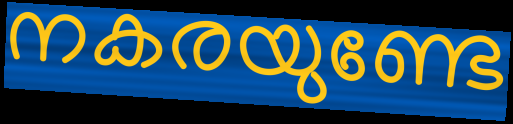
നകരയുണ്ടേ